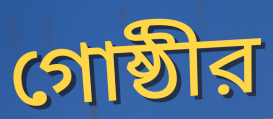
গোষ্ঠীর